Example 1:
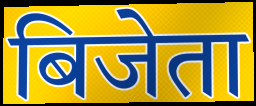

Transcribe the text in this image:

बिजेता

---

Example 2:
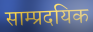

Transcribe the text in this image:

साम्प्रदयिक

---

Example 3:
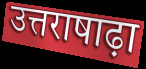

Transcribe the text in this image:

उत्तराषाढ़ा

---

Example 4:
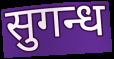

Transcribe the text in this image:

सुगन्ध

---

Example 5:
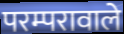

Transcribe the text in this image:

परम्परावाले